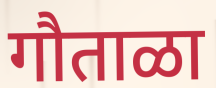
गौताळा